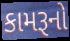
કામરૂનો